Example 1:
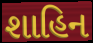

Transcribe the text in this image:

શાહિન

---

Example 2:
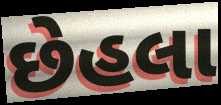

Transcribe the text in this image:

છેહલા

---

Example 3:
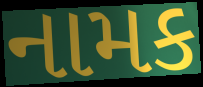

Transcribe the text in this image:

નામક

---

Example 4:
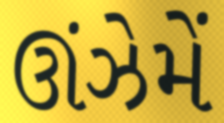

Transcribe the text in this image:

ઊંઝેમેં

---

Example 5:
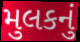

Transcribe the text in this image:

મુલકનું